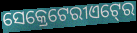
ସେକ୍ରେଟେରୀଏଟ୍‍ରେ